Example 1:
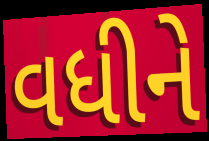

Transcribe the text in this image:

વધીને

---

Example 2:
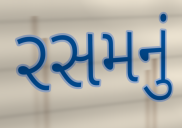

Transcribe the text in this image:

રસમનું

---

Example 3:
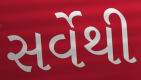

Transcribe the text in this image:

સર્વેથી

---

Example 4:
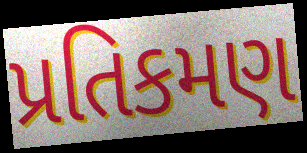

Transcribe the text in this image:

પ્રતિકમણ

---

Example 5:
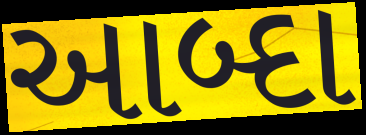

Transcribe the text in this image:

આબ્દા